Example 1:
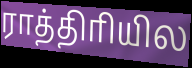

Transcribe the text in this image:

ராத்திரியில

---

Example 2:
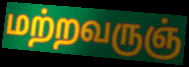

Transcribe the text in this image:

மற்றவருஞ்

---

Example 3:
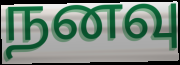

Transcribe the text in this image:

நனவு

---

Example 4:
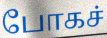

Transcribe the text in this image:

போகச்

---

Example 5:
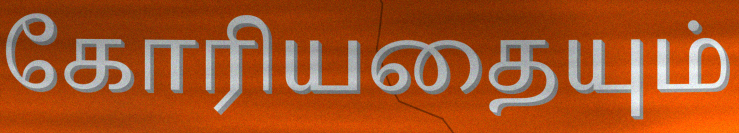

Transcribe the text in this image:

கோரியதையும்